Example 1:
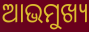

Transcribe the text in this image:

ଆଭମୁଖ୍ୟ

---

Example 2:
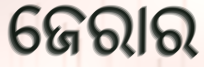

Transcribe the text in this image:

ଜେରାର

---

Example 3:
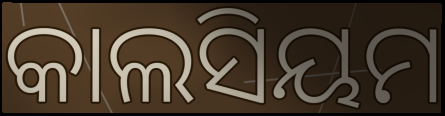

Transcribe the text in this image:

କାଲସିୟମ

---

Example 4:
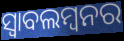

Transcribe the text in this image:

ସ୍ବାବଲମ୍ବନର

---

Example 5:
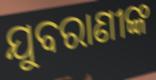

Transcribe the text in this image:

ଯୁବରାଣୀଙ୍କ